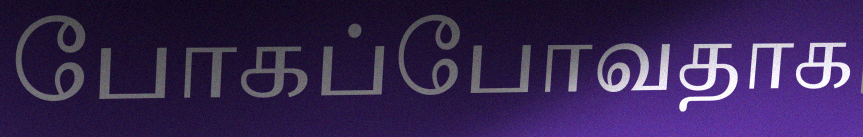
போகப்போவதாக